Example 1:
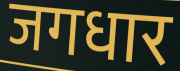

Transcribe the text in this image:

जगधार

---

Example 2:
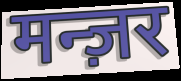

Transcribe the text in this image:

मन्ज़र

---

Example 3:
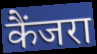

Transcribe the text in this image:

कैंजरा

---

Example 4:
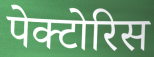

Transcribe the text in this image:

पेक्टोरिस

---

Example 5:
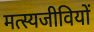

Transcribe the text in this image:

मत्स्यजीवियों